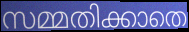
സമ്മതിക്കാതെ